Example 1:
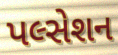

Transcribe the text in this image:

પલ્સેશન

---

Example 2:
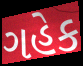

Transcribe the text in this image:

ગહેક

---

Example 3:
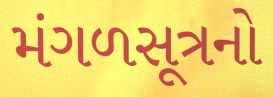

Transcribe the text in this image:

મંગળસૂત્રનો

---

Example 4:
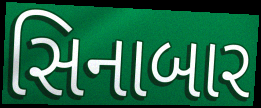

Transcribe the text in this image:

સિનાબાર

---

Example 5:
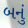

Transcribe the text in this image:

બનું